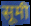
सूमी